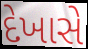
દેખાસે